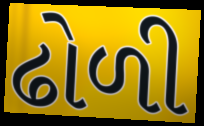
ઢોળી